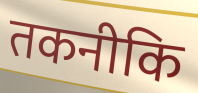
तकनीकि